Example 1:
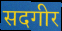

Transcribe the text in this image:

सदगीर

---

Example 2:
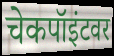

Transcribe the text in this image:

चेकपॉइंटवर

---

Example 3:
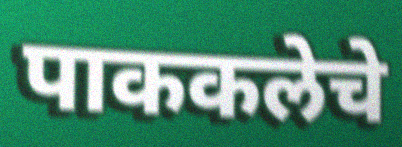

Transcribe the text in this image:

पाककलेचे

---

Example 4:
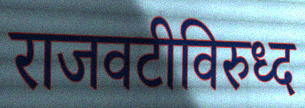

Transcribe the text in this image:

राजवटीविरुध्द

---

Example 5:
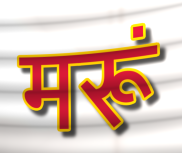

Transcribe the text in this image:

मरूं